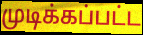
முடிக்கப்பட்ட